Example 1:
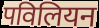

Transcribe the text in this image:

पविलियन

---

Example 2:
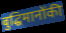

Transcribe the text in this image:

बुद्धिमानोंकी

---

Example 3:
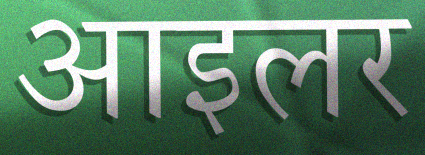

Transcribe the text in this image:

आइलर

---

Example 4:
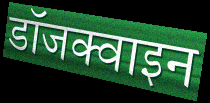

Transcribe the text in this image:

डॉजक्वाइन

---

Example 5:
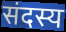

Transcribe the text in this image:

संदस्य